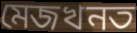
মেজখনত